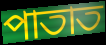
পাতাত